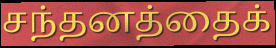
சந்தனத்தைக்